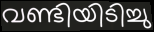
വണ്ടിയിടിച്ചു